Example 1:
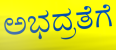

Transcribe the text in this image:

ಅಭದ್ರತೆಗೆ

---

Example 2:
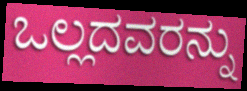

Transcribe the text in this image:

ಒಲ್ಲದವರನ್ನು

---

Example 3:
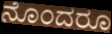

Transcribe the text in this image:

ನೊಂದರೂ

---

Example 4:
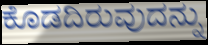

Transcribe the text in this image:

ಕೊಡದಿರುವುದನ್ನು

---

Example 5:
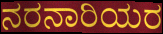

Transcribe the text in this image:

ನರನಾರಿಯರ